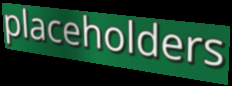
placeholders